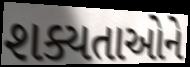
શક્યતાઓને